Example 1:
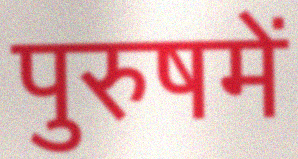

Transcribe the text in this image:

पुरुषमें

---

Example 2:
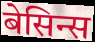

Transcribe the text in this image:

बेसिन्स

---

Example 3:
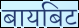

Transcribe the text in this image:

बायबिट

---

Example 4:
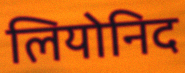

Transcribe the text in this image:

लियोनिद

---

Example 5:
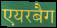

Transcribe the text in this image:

एयरबैग